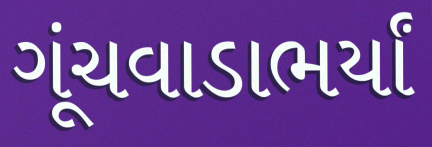
ગૂંચવાડાભર્યાં